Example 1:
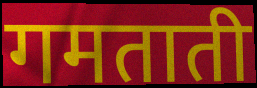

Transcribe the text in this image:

गमताती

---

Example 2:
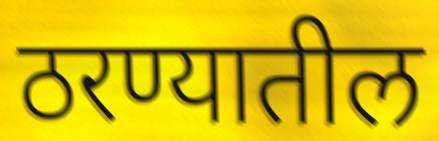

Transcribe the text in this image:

ठरण्यातील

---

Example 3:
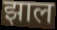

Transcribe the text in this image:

झाल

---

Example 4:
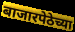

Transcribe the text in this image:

बाजारपेठेच्या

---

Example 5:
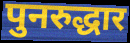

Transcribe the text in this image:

पुनरुद्धार